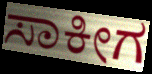
ಸಾಕೀಗ